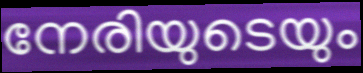
നേരിയുടെയും